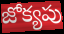
జోక్యపు